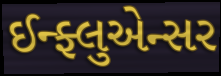
ઈન્ફ્લુએન્સર